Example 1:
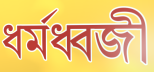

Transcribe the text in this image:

ধর্মধ্বজী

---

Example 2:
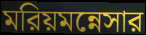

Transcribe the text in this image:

মরিয়মন্নেসার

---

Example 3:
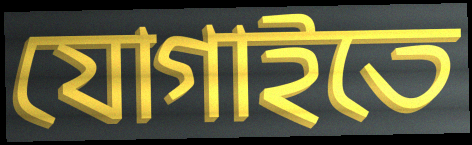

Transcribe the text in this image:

যোগাইতে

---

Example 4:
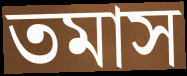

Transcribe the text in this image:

তমাস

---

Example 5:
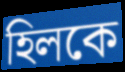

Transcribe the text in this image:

হিলকে